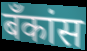
बँकांस